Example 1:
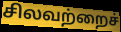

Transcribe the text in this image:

சிலவற்றைச்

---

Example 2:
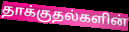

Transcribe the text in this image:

தாக்குதல்களின்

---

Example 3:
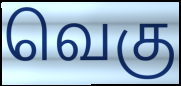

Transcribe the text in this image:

வெகு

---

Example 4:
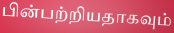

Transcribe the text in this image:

பின்பற்றியதாகவும்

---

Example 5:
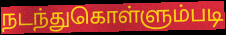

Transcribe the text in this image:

நடந்துகொள்ளும்படி